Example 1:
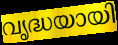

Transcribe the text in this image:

വൃദ്ധയായി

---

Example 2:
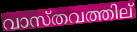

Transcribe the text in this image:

വാസ്തവത്തില്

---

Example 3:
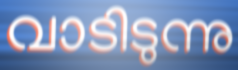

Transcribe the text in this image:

വാടിടുന്നു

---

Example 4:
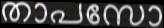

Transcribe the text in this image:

താപസോ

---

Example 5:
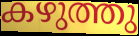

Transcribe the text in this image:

കഴുത്തു